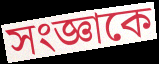
সংজ্ঞাকে